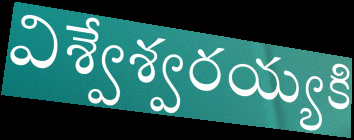
విశ్వేశ్వరయ్యకి